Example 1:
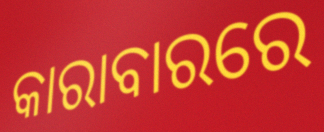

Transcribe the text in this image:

କାରାବାରରେ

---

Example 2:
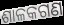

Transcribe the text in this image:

ଶାଳକଗଣ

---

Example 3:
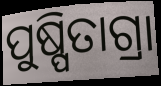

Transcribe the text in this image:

ପୁଷ୍ପିତାଗ୍ରା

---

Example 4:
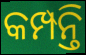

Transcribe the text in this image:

କମ୍ପନ୍ତି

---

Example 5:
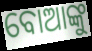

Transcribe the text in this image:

ବୋଆଙ୍କୁ